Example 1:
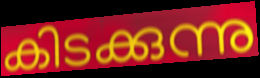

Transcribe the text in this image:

കിടക്കുന്നു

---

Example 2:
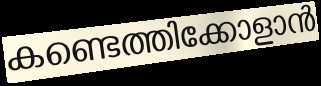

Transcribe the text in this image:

കണ്ടെത്തിക്കോളാൻ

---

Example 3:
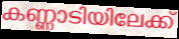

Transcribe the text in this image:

കണ്ണാടിയിലേക്ക്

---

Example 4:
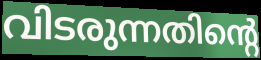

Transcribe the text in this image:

വിടരുന്നതിന്റെ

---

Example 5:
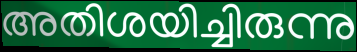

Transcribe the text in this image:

അതിശയിച്ചിരുന്നു